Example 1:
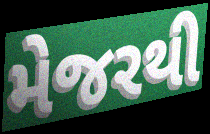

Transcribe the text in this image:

મેજરથી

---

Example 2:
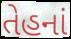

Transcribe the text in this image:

તેહનાં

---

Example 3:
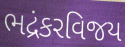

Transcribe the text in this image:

ભદ્રંકરવિજય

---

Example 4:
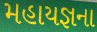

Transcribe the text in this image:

મહાયજ્ઞના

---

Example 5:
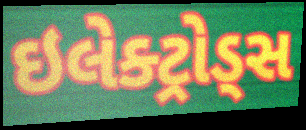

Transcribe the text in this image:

ઇલેક્ટ્રોડ્સ